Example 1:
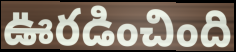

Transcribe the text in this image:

ఊరడించింది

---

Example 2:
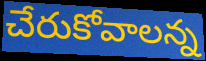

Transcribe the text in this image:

చేరుకోవాలన్న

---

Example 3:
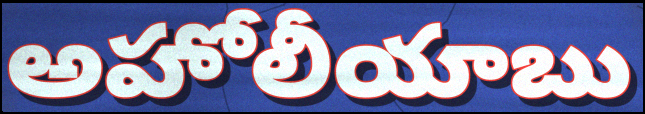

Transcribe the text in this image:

అహోలీయాబు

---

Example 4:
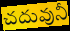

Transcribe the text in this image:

చదువునీ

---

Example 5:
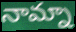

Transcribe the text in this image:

నామ్నా